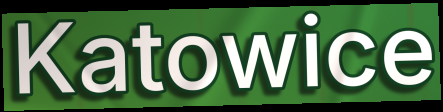
Katowice